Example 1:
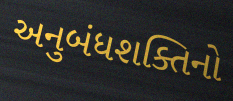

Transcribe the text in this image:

અનુબંધશક્તિનો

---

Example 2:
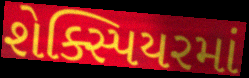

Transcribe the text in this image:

શેક્સ્પિયરમાં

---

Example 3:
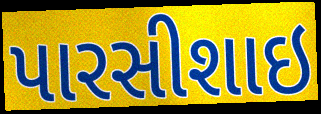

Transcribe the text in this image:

પારસીશાઇ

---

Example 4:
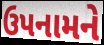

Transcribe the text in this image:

ઉપનામને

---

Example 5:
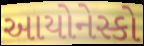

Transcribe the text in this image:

આયોનેસ્કો